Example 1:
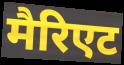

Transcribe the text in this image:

मैरिएट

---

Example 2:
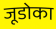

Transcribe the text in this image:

जूडोका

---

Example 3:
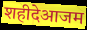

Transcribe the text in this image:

शहीदेआजम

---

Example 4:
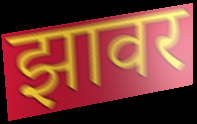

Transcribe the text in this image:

झावर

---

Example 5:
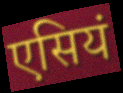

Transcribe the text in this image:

एसियं